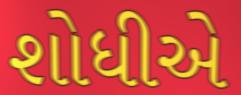
શોધીએ